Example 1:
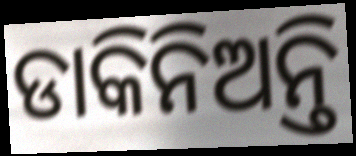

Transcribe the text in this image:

ଡାକିନିଅନ୍ତି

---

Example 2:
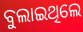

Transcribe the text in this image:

ବୁଲାଇଥିଲେ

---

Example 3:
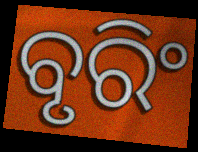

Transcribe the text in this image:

ବୃରିଂ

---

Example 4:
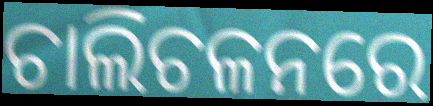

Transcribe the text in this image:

ଚାଲିଚଳନରେ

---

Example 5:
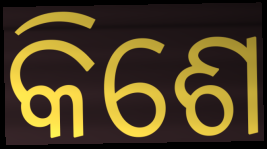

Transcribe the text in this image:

କିଶେ